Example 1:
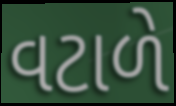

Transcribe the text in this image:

વટાળે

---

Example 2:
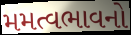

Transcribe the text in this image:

મમત્વભાવનો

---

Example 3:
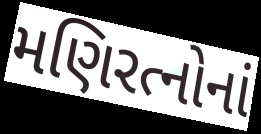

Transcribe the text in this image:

મણિરત્નોનાં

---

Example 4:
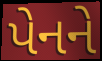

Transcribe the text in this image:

પેનને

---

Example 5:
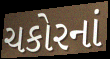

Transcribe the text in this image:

ચકોરનાં